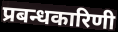
प्रबन्धकारिणी